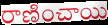
రాణించాయి